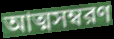
আত্মসম্বরণ